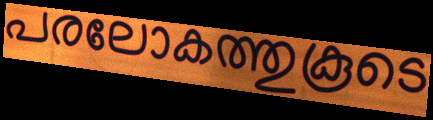
പരലോകത്തുകൂടെ